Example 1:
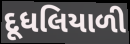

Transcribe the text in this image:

દૂધલિયાળી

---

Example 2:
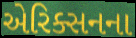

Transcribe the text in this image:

એરિક્સનના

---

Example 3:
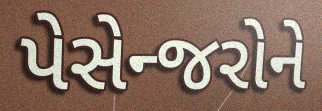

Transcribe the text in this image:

પેસેન્જરોને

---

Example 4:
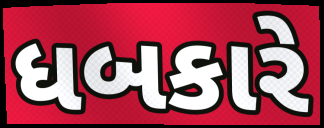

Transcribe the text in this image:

ધબકારે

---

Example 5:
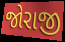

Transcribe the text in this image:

જોરાજી